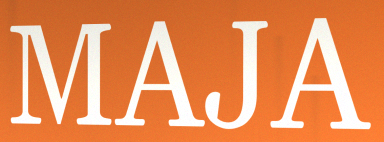
MAJA